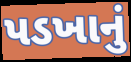
પડખાનું